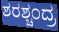
ಶರಶ್ಚಂದ್ರ